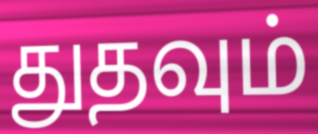
துதவும்